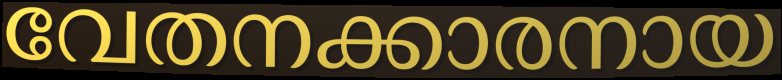
വേതനക്കാരനായ